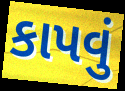
કાપવું